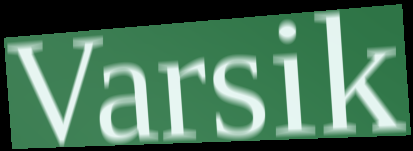
Varsik